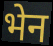
भेन